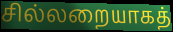
சில்லறையாகத்